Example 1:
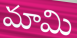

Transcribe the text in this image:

మామి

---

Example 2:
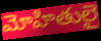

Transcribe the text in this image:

మోహితులై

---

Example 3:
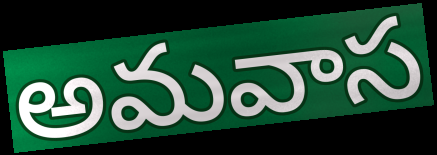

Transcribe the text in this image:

అమవాస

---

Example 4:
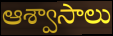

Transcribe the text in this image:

ఆశ్వాసాలు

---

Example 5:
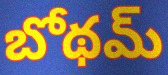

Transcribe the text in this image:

బోథమ్